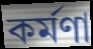
কর্মণা